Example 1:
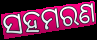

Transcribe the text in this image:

ସହମରଣ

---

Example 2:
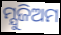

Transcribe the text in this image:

ମ୍ଯୁଜିଅମ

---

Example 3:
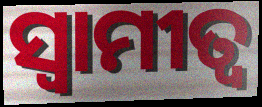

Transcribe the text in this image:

ସ୍ଵାମୀତ୍ବ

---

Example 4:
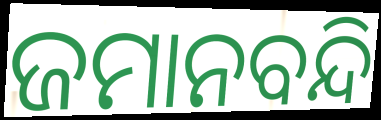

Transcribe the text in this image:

ଜମାନବନ୍ଦି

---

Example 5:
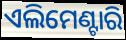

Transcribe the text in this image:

ଏଲିମେଣ୍ଟାରି